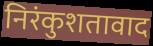
निरंकुशतावाद